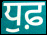
ਧੁਫ਼